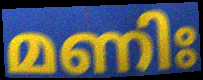
മണിഃ